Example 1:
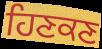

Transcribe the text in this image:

ਹਿਣਕਣ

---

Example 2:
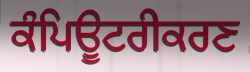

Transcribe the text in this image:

ਕੰਪਿਊਟਰੀਕਰਣ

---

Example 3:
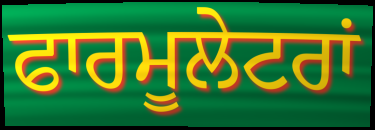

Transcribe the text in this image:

ਫਾਰਮੂਲੇਟਰਾਂ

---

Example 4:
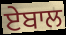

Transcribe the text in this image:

ਏਬਾਲ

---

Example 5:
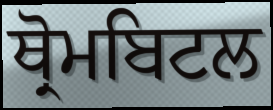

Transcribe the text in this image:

ਥ੍ਰੋਮਬਿਟਲ